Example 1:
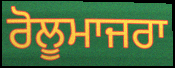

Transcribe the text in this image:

ਰੋਲੂਮਾਜਰਾ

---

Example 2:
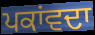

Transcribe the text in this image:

ਪਕਾਂਵਦਾ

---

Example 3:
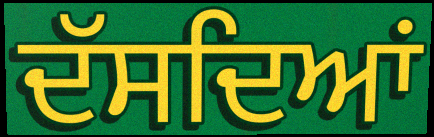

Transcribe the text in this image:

ਦੱਸਦਿਆਂ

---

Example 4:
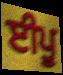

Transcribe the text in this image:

ਈਪੂ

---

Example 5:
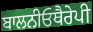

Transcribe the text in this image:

ਬਾਲਨੀਓਥੈਰੇਪੀ